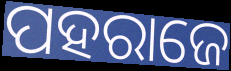
ପହରାଜେ